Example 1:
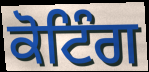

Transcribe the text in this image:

ਕੋਟਿੰਗ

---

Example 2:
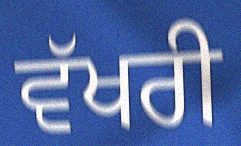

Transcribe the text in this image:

ਵੱਖਰੀ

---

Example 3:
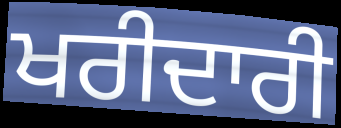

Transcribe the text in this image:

ਖਰੀਦਾਰੀ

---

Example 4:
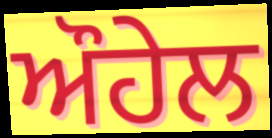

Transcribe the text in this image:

ਔਹੇਲ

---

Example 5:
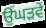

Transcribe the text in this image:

ਉੱਘੜਵੇਂ